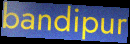
bandipur